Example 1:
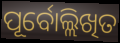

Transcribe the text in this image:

ପୂର୍ବୋଲ୍ଲିଖିତ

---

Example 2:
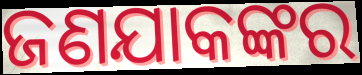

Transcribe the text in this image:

ଜଣଯାକଙ୍କର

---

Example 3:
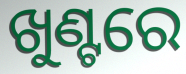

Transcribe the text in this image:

ଖୁଣ୍ଟରେ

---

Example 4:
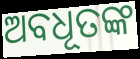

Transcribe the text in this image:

ଅବଧୂତଙ୍କ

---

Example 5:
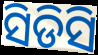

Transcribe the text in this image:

ସିଡିସି